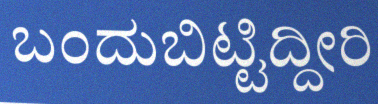
ಬಂದುಬಿಟ್ಟಿದ್ದೀರಿ